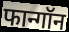
फान्गॉन